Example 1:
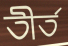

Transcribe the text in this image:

তীর্ত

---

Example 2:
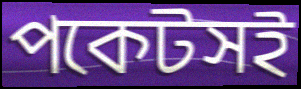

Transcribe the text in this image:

পকেটসই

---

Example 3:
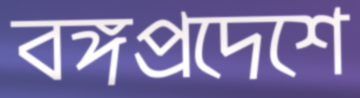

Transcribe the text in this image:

বঙ্গপ্রদেশে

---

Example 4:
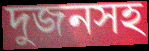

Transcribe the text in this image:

দুজনসহ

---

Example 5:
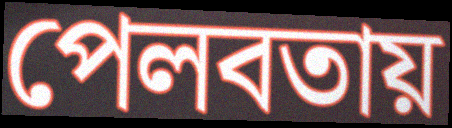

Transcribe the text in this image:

পেলবতায়